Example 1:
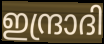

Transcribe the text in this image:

ഇന്ദ്രാദി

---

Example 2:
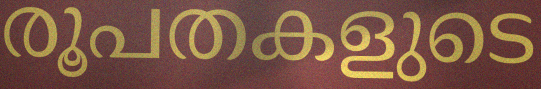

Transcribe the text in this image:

രൂപതകളുടെ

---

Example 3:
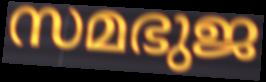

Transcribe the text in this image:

സമഭുജ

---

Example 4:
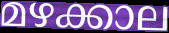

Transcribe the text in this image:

മഴക്കാല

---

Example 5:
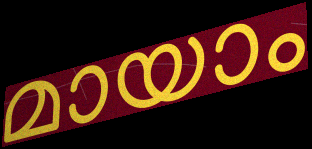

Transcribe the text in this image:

മായാം